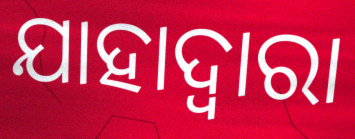
ଯାହାଦ୍ୱାରା